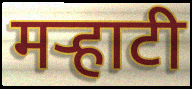
मऱ्हाटी